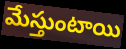
మేస్తుంటాయి